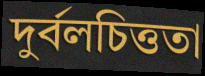
দুর্বলচিত্ততা